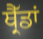
ਥ੍ਰੈੱਡਾਂ